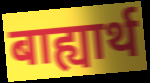
बाह्यार्थ